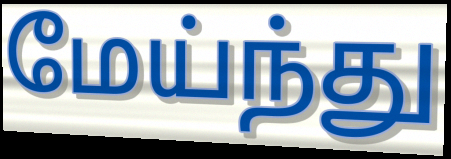
மேய்ந்து